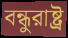
বন্ধুরাষ্ট্র